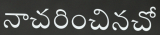
నాచరించినచో